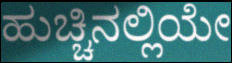
ಹುಚ್ಚಿನಲ್ಲಿಯೇ